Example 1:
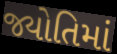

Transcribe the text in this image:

જ્યોતિમાં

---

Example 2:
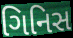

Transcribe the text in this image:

ગિનિસ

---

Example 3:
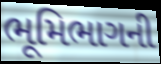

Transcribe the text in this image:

ભૂમિભાગની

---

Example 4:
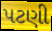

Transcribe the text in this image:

પટણી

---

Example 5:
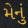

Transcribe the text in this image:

મેનું